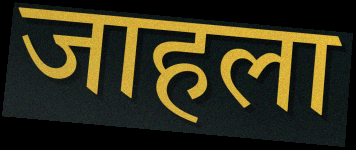
जाहला